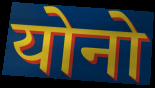
योनो